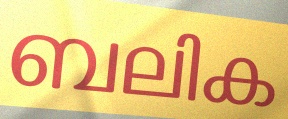
ബലിക